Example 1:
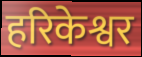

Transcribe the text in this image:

हरिकेश्वर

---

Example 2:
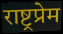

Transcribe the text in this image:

राष्ट्रप्रेम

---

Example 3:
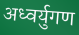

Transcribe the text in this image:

अध्वर्युगण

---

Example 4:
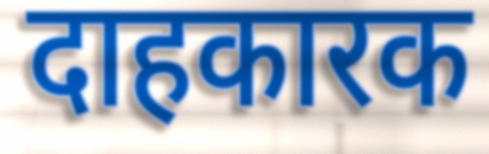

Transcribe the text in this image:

दाहकारक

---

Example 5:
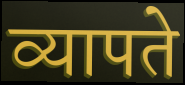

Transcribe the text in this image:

व्यापते